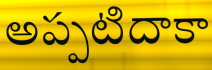
అప్పటిదాకా